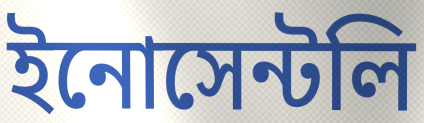
ইনোসেন্টলি